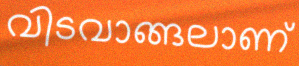
വിടവാങ്ങലാണ്